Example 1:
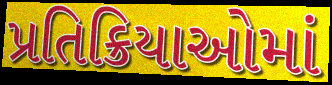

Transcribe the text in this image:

પ્રતિક્રિયાઓમાં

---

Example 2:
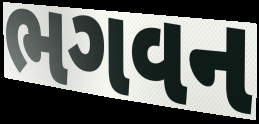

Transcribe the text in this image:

ભગવન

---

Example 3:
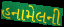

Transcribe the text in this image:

હનામેલની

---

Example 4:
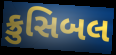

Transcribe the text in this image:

ક્રુસિબલ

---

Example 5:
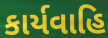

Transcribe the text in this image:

કાર્યવાહિ